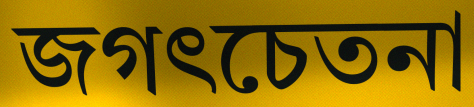
জগৎচেতনা